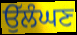
ਉੱਲੰਘਣ